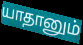
யாதானும்